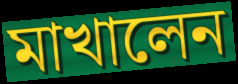
মাখালেন